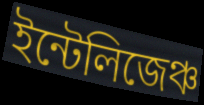
ইন্টেলিজেঞ্চ